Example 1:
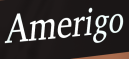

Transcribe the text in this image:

Amerigo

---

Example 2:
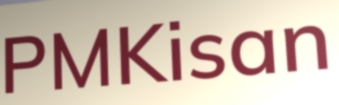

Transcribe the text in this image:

PMKisan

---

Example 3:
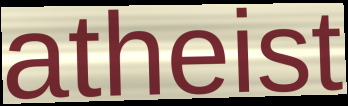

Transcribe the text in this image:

atheist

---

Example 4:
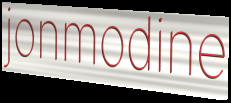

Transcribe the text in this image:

jonmodine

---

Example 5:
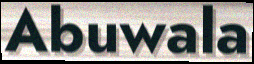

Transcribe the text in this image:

Abuwala